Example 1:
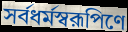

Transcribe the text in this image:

সর্বধর্মস্বরূপিণে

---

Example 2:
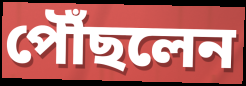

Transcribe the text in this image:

পৌঁছলেন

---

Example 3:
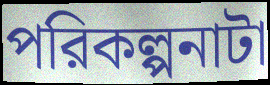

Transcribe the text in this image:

পরিকল্পনাটা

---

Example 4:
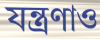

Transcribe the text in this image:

যন্ত্রণাও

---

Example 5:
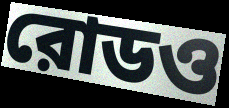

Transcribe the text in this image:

রোডও